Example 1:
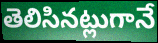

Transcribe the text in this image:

తెలిసినట్లుగానే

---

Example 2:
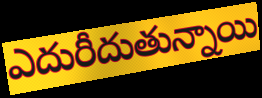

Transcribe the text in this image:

ఎదురీదుతున్నాయి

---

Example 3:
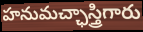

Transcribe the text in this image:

హనుమచ్ఛాస్త్రిగారు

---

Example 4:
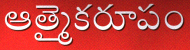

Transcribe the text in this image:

ఆత్మైకరూపం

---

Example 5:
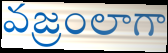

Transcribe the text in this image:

వజ్రంలాగా